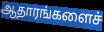
ஆதாரங்களைச்